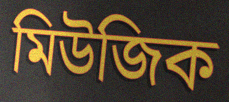
মিউজিক